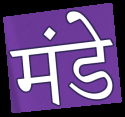
मंडे